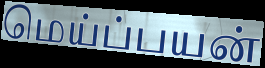
மெய்ப்பயன்